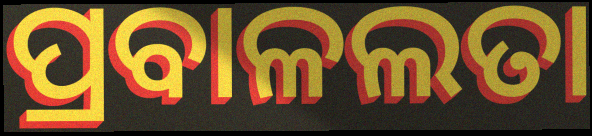
ପ୍ରବାଳଲତା